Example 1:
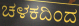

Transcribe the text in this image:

ಚಳಕದಿಂದ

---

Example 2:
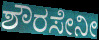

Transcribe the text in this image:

ಶೌರಸೇನೀ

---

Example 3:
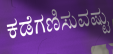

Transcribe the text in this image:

ಕಡೆಗಣಿಸುವಷ್ಟು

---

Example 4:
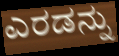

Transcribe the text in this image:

ಎರಡನ್ನು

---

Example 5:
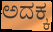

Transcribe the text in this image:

ಅದಕ್ಕ